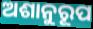
ଅଶାନୁରୂପ